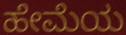
ಹೇಮೆಯ